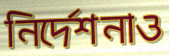
নির্দেশনাও